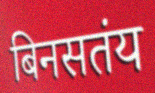
बिनसतंय